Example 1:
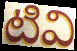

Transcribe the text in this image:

టివి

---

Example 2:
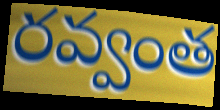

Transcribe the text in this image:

రవ్వంత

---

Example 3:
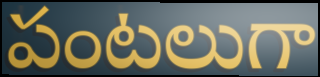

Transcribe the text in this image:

పంటలుగా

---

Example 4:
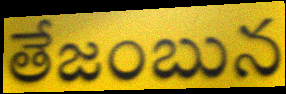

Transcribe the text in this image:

తేజంబున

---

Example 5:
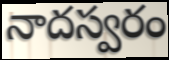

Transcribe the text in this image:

నాదస్వరం